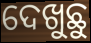
ଦେଖୁଛୁ